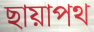
ছায়াপথ